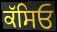
ਕੱਸਿਓ